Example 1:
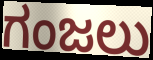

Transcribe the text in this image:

ಗಂಜಲು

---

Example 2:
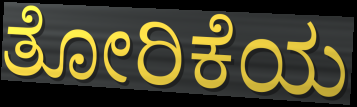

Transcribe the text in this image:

ತೋರಿಕೆಯ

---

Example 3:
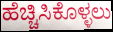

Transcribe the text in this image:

ಹೆಚ್ಚಿಸಿಕೊಳ್ಳಲು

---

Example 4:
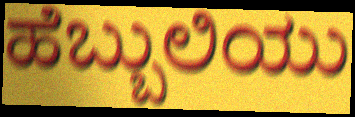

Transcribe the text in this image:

ಹೆಬ್ಬುಲಿಯು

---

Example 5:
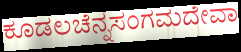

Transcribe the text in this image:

ಕೂಡಲಚೆನ್ನಸಂಗಮದೇವಾ